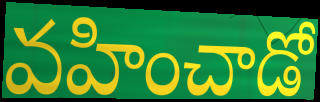
వహించాడో